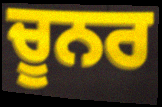
ਚੂਨਰ